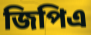
জিপিএ